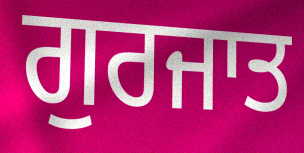
ਗੁਰਜਾਤ